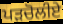
ਪੜਚੋਲੀਏ